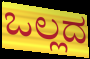
ಒಲ್ಲದ